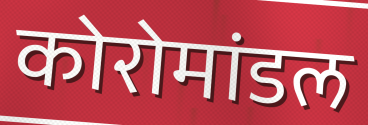
कोरोमांडल